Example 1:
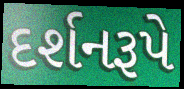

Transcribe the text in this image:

દર્શનરૂપે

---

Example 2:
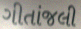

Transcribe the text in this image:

ગીતાંજલી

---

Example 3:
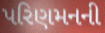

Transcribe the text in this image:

પરિણમનની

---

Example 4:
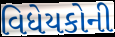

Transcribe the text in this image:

વિધેયકોની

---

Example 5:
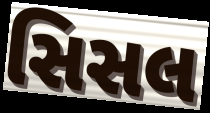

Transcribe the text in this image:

સિસલ